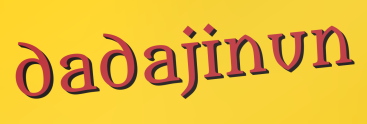
dadajinun